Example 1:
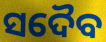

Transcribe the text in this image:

ସଦୈବ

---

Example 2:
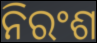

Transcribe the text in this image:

ନିରଂଶ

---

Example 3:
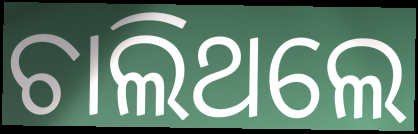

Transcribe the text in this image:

ଚାଲିଥଲେ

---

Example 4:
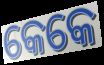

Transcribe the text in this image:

କେକେ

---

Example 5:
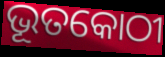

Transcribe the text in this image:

ଭୂତକୋଠୀ